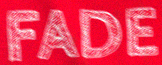
FADE